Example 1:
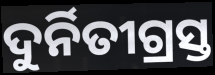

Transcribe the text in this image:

ଦୁର୍ନିତୀଗ୍ରସ୍ତ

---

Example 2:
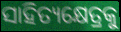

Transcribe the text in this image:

ସାହିତ୍ୟକ୍ଷେତ୍ରକୁ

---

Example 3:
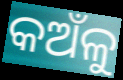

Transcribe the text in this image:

କଅଁଳୁ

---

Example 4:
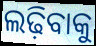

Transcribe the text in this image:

ଲଢ଼ିବାକୁ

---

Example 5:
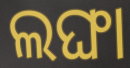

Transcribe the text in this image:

ଲଙ୍ଘା